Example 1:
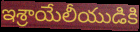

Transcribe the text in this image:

ఇశ్రాయేలీయుడికి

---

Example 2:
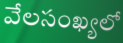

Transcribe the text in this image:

వేలసంఖ్యలో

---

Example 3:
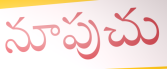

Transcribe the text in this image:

నూపుచు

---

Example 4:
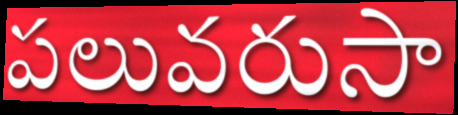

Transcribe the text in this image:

పలువరుసా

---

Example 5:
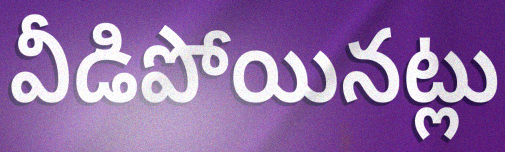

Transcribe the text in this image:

వీడిపోయినట్లు